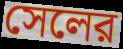
সেলের